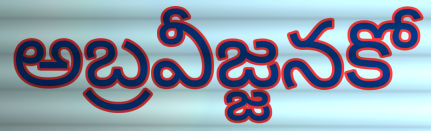
అబ్రవీజ్జనకో